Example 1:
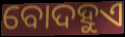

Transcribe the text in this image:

ବୋଦହୁଏ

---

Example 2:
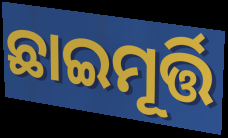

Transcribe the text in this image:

ଛାଇମୂର୍ତ୍ତି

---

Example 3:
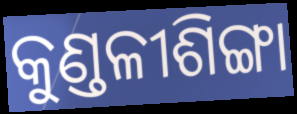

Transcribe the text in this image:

କୁଣ୍ଡଳୀଶିଙ୍ଗା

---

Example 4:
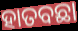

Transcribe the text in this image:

ହାତବଛା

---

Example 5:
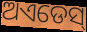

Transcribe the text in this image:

ଅଏଡେସ୍